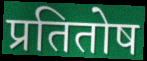
प्रतितोष